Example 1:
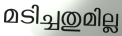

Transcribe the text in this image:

മടിച്ചതുമില്ല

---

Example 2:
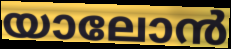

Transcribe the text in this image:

യാലോൻ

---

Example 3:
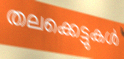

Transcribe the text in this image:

തലക്കെട്ടുകൾ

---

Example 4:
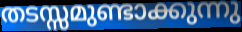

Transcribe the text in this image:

തടസ്സമുണ്ടാക്കുന്നു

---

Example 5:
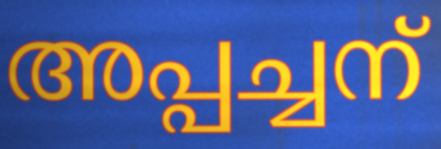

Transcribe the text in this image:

അപ്പച്ചന്